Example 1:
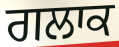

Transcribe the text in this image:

ਗਲਾਕ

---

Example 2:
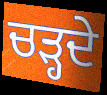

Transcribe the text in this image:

ਚਡ਼੍ਹਦੇ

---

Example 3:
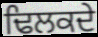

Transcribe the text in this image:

ਢਿਲਕਦੇ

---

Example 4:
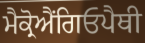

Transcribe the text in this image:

ਮੈਕ੍ਰੋਐਂਗਿਓਪੈਥੀ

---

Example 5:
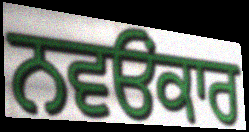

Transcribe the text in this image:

ਨਵਓਂਕਾਰ